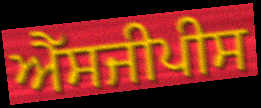
ਐੱਸਜੀਪੀਸ